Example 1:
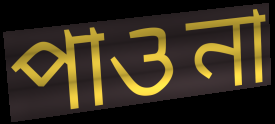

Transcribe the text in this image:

পাওনা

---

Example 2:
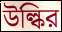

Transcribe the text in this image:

উল্কির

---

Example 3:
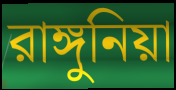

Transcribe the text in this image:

রাঙ্গুনিয়া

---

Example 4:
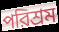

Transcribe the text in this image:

পরিশ্রম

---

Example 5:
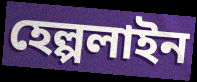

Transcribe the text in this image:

হেল্পলাইন